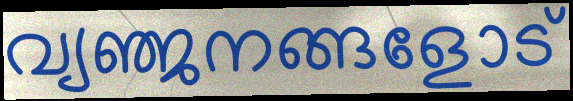
വ്യഞ്ജനങ്ങളോട്